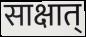
साक्षात्